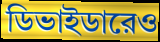
ডিভাইডারেও